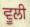
ਵੂਲੀ